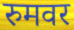
रुमवर